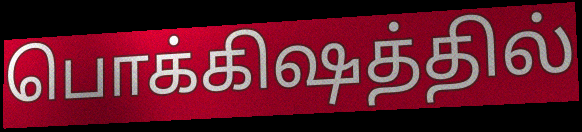
பொக்கிஷத்தில்